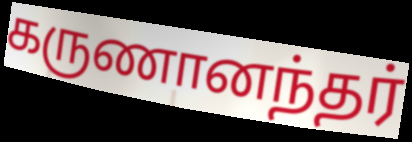
கருணானந்தர்